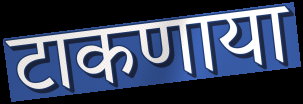
टाकणाया